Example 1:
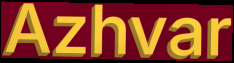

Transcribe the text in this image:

Azhvar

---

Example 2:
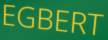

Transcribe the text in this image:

EGBERT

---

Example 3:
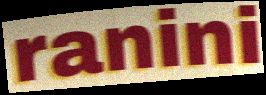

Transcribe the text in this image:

ranini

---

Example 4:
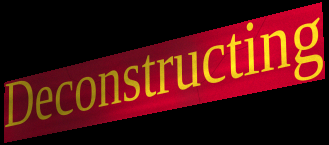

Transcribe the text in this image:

Deconstructing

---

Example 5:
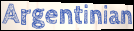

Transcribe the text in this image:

Argentinian